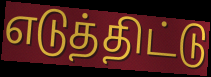
எடுத்திட்டு